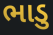
ભાડુ